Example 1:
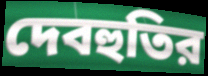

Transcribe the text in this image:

দেবহুতির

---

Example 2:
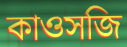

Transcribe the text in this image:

কাওসজি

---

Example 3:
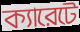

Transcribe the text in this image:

ক্যারেটে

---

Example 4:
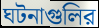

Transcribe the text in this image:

ঘটনাগুলির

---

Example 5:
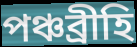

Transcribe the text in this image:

পঞ্চব্রীহি